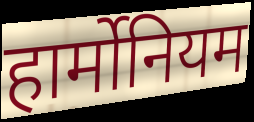
हार्मोनियम